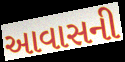
આવાસની